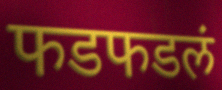
फडफडलं